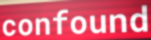
confound